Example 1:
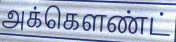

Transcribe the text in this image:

அக்கெளண்ட்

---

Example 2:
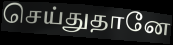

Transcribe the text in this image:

செய்துதானே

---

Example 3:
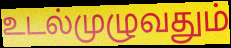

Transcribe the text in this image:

உடல்முழுவதும்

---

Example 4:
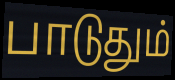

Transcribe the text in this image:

பாடுதும்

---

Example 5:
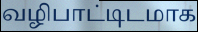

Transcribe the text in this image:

வழிபாட்டிடமாக